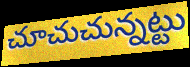
చూచుచున్నట్టు